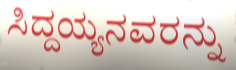
ಸಿದ್ದಯ್ಯನವರನ್ನು